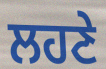
ਲਹਣੇ